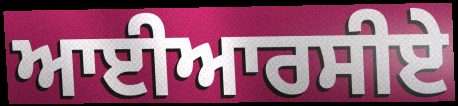
ਆਈਆਰਸੀਏ